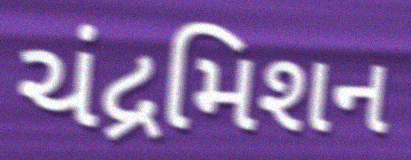
ચંદ્રમિશન